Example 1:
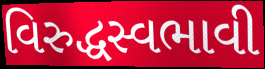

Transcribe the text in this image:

વિરુદ્ધસ્વભાવી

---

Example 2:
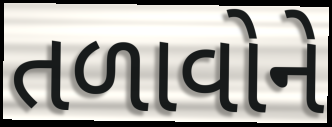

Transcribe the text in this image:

તળાવોને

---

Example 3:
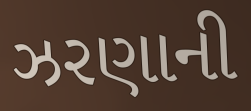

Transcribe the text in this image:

ઝરણાની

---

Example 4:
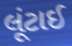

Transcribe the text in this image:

લૂંટાઈ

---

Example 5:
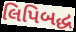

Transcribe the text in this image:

લિપિબદ્ધ